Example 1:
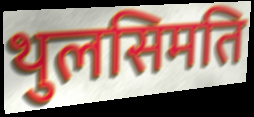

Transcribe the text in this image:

थुलसिमति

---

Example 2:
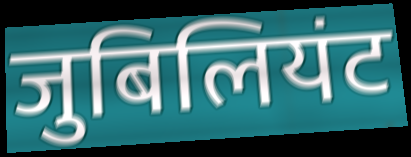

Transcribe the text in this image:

जुबिलियंट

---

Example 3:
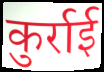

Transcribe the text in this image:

कुर्राई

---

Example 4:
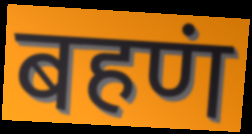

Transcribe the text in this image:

बहणं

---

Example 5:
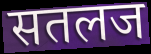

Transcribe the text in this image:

सतलज